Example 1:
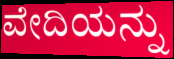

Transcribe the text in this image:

ವೇದಿಯನ್ನು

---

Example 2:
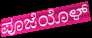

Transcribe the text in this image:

ಪೂಜೆಯೊಳ್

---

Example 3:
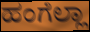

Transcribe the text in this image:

ಹಂಗೆಲ್ಲಾ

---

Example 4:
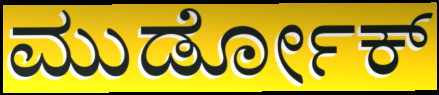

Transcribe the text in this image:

ಮುರ್ಡೋಕ್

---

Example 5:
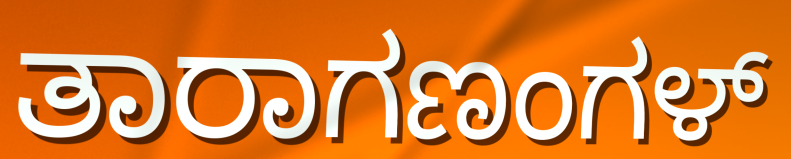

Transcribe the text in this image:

ತಾರಾಗಣಂಗಳ್